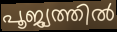
പൂജ്യത്തിൽ